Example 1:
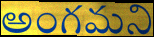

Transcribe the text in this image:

అంగమని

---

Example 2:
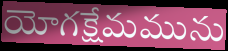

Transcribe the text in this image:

యోగక్షేమమును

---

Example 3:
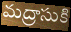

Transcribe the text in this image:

మద్రాసుకి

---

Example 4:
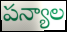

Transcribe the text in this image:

పన్యాల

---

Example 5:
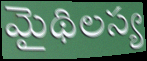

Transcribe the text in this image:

మైథిలస్య